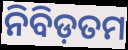
ନିବିଡ଼ତମ